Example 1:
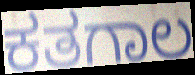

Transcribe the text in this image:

ಕತಗಾಲ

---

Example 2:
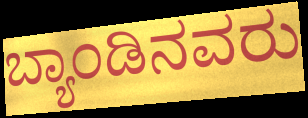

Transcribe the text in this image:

ಬ್ಯಾಂಡಿನವರು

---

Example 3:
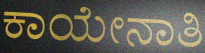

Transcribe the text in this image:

ಕಾಯೇನಾತಿ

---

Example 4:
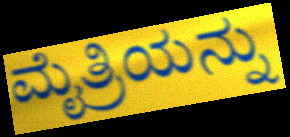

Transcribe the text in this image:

ಮೈತ್ರಿಯನ್ನು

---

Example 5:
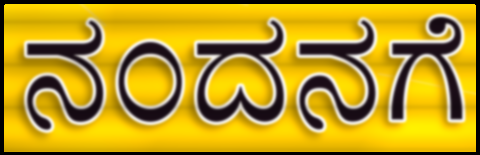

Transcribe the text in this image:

ನಂದನಗೆ